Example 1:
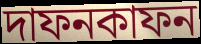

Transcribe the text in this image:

দাফনকাফন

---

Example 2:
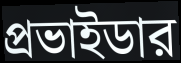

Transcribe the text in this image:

প্রভাইডার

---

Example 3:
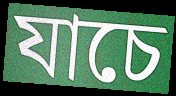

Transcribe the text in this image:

যাচে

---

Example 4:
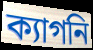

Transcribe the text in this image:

ক্যাগনি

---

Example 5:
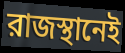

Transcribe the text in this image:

রাজস্থানেই